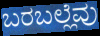
ಬರಬಲ್ಲೆವು